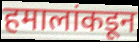
हमालांकडून